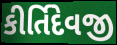
કીર્તિદેવજી